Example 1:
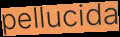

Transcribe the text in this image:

pellucida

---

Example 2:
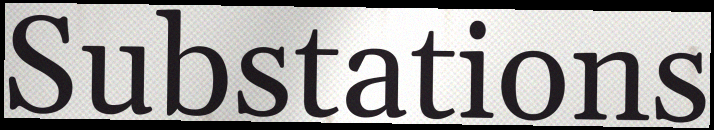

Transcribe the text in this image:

Substations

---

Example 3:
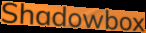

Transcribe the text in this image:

Shadowbox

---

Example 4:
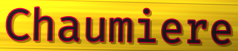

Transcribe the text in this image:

Chaumiere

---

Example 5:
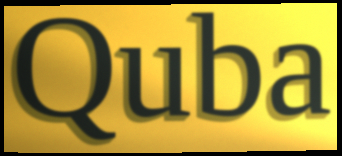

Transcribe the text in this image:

Quba